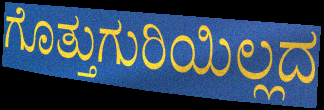
ಗೊತ್ತುಗುರಿಯಿಲ್ಲದ